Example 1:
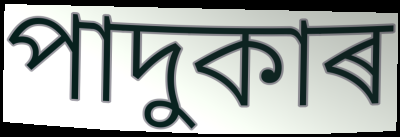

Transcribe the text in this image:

পাদুকাৰ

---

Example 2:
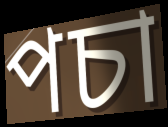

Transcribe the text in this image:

পচা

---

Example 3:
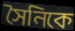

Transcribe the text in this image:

সৈনিকে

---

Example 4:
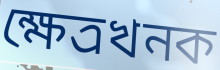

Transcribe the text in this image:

ক্ষেত্ৰখনক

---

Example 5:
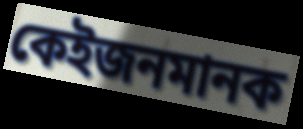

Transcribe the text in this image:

কেইজনমানক